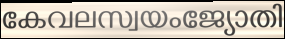
കേവലസ്വയംജ്യോതി